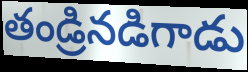
తండ్రినడిగాడు